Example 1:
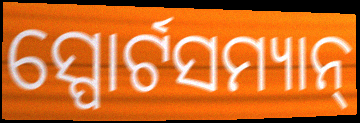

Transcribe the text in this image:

ସ୍ପୋର୍ଟସମ୍ୟାନ୍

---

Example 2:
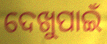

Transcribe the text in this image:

ଦେଖୁପାଇଁ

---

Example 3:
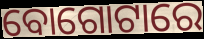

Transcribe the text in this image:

ବୋଗୋଟାରେ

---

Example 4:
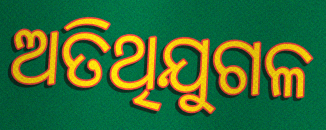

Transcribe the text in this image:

ଅତିଥିଯୁଗଳ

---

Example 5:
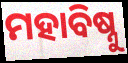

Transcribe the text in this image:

ମହାବିଷ୍ନୁ